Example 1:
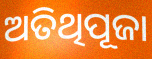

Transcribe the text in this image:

ଅତିଥିପୂଜା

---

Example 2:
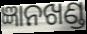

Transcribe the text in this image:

ଜ୍ଞାନଖଣ୍ଡ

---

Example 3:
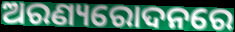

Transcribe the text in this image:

ଅରଣ୍ୟରୋଦନରେ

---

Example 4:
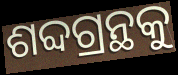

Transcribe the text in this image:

ଶବ୍ଦଗ୍ରନ୍ଥକୁ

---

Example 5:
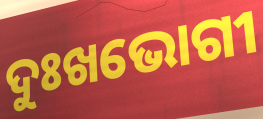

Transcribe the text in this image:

ଦୁଃଖଭୋଗୀ